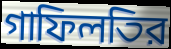
গাফিলতির